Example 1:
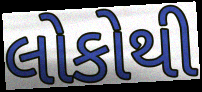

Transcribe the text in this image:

લોકોથી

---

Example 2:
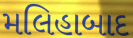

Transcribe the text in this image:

મલિહાબાદ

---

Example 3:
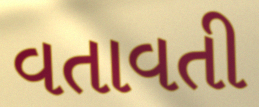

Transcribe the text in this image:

વતાવતી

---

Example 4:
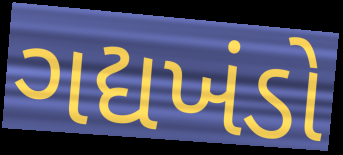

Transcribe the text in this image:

ગદ્યખંડો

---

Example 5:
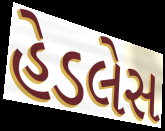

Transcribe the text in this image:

હેડલેસ